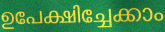
ഉപേക്ഷിച്ചേക്കാം